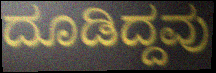
ದೂಡಿದ್ದವು